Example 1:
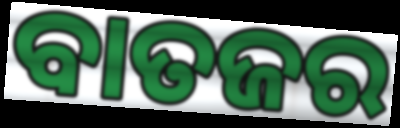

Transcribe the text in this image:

ବାତଜର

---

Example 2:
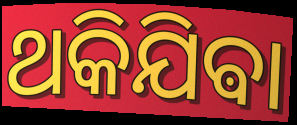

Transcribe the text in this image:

ଥକିଯିଵା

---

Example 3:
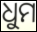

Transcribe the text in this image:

ଧୁମ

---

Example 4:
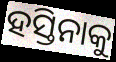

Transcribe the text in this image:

ହସ୍ତିନାକୁ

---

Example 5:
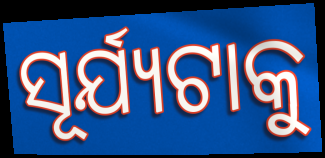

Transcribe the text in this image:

ସୂର୍ଯ୍ୟଟାକୁ